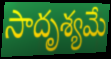
సాదృశ్యమే